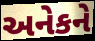
અનેકને